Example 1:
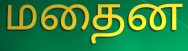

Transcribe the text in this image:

மதைன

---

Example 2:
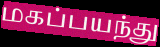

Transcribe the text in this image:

மகப்பயந்து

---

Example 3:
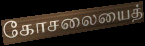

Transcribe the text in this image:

கோசலையைத்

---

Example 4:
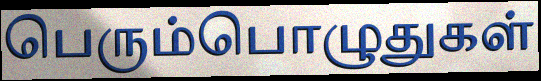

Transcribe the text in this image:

பெரும்பொழுதுகள்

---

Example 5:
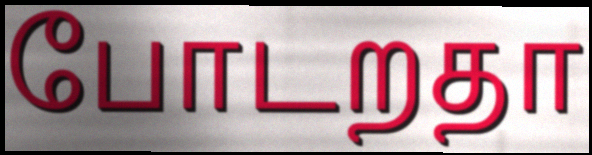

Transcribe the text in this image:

போடறதா